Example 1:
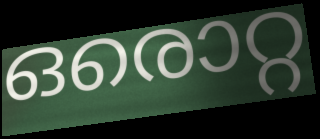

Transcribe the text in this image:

ഒരൊറ്റ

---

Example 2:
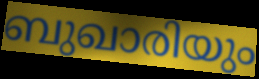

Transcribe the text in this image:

ബുഖാരിയും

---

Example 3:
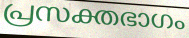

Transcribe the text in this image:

പ്രസക്തഭാഗം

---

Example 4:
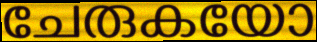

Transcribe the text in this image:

ചേരുകയോ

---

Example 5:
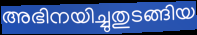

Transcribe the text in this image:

അഭിനയിച്ചുതുടങ്ങിയ